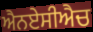
ਐਨਏਸੀਐਚ